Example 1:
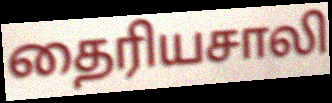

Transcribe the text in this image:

தைரியசாலி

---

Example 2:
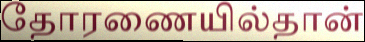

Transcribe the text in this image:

தோரணையில்தான்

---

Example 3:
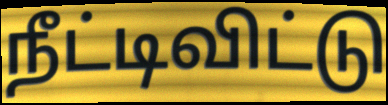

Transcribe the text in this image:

நீட்டிவிட்டு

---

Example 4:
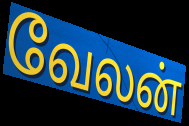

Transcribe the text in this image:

வேலன்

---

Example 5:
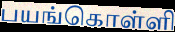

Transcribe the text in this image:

பயங்கொள்ளி